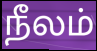
நீலம்